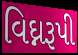
વિઘ્નરૂપી